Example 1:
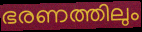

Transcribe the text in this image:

ഭരണത്തിലും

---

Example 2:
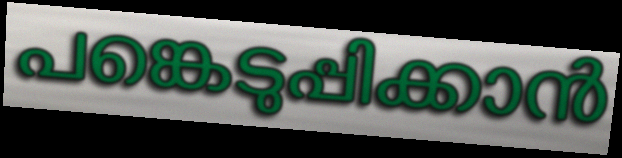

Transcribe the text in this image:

പങ്കെടുപ്പിക്കാൻ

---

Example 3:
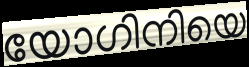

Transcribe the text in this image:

യോഗിനിയെ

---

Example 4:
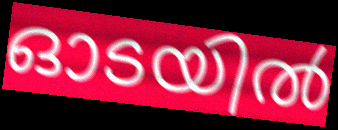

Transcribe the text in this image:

ഓടയിൽ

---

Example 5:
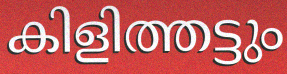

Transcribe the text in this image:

കിളിത്തട്ടും